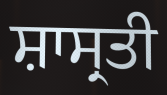
ਸ਼ਾਸ੍ਰਤੀ